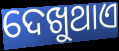
ଦେଖୁଥାଏ